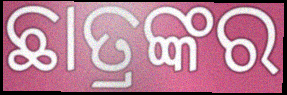
ଛାତ୍ରଙ୍କର